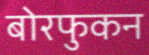
बोरफुकन